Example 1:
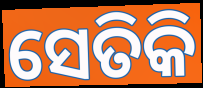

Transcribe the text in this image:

ସେତିକି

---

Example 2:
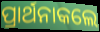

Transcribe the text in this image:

ପ୍ରାର୍ଥନାକଲେ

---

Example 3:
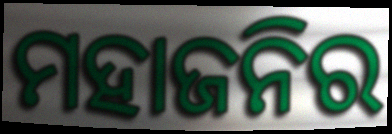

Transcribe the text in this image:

ମହାଜନିର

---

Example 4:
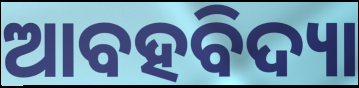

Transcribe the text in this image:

ଆବହବିଦ୍ୟା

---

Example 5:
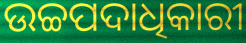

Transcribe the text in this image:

ଉଚ୍ଚପଦାଧିକାରୀ